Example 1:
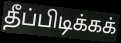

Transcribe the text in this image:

தீப்பிடிக்கக்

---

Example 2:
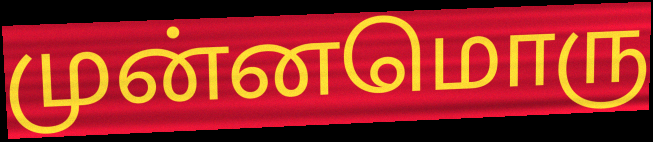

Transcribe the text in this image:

முன்னமொரு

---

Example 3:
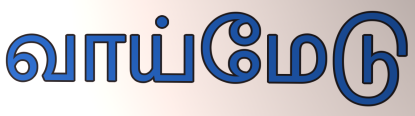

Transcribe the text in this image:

வாய்மேடு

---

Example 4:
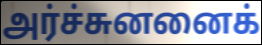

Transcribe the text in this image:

அர்ச்சுனனைக்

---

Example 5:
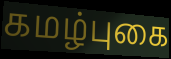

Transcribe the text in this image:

கமழ்புகை